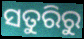
ସତୁରିରୁ